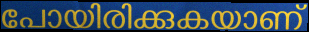
പോയിരിക്കുകയാണ്